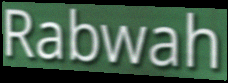
Rabwah